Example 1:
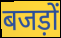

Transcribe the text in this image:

बजड़ों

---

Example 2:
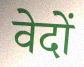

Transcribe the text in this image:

वेदों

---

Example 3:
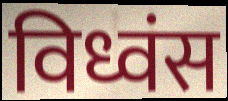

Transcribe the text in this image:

विध्वंस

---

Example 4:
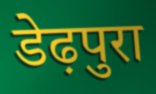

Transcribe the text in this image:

डेढ़पुरा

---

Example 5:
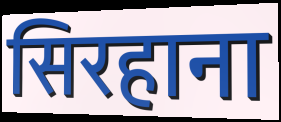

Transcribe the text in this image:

सिरहाना